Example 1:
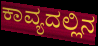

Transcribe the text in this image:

ಕಾವ್ಯದಲ್ಲಿನ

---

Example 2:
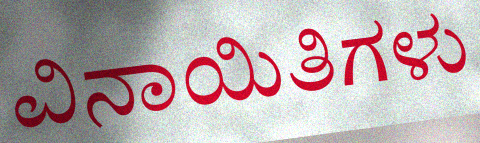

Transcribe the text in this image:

ವಿನಾಯಿತಿಗಳು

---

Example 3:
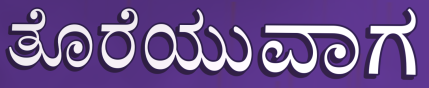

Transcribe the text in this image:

ತೊರೆಯುವಾಗ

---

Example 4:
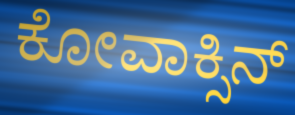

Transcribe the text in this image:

ಕೋವಾಕ್ಸಿನ್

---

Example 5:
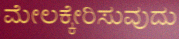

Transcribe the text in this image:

ಮೇಲಕ್ಕೇರಿಸುವುದು